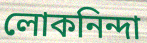
লোকনিন্দা